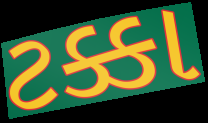
ટક્કા